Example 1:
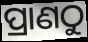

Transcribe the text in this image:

ପ୍ରାଣଠୁ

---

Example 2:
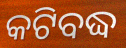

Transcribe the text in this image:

କଟିବଦ୍ଧ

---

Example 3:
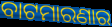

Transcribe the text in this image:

ବାଟମାରଣାର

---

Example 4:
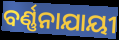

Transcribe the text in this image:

ବର୍ଣ୍ଣନାଯାୟୀ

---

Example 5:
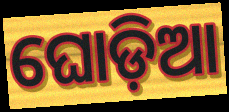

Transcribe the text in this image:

ଘୋଡ଼ିଆ